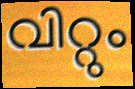
വിറ്റും